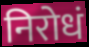
निरोधं